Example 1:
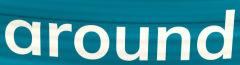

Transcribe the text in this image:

around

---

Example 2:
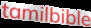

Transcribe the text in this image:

tamilbible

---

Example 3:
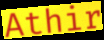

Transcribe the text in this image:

Athir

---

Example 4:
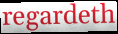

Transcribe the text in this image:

regardeth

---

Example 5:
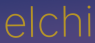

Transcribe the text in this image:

elchi